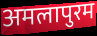
अमलापुरम